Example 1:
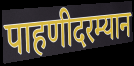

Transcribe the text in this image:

पाहणीदरम्यान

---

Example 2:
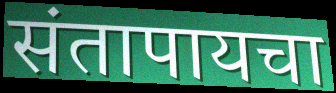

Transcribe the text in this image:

संतापायचा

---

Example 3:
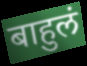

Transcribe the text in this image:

बाहुलं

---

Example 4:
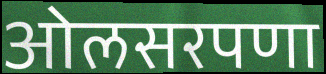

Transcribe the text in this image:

ओलसरपणा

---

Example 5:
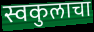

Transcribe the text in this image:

स्वकुलाचा